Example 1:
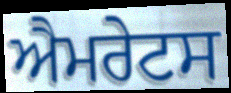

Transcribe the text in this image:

ਐਮਰੇਟਸ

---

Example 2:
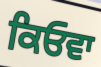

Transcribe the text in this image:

ਕਿਓਵਾ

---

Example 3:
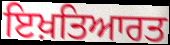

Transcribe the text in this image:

ਇਖ਼ਤਿਆਰਤ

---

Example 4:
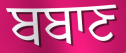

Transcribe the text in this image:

ਬਬਾਣ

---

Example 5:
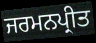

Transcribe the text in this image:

ਜਰਮਨਪ੍ਰੀਤ